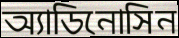
অ্যাডিনোসিন